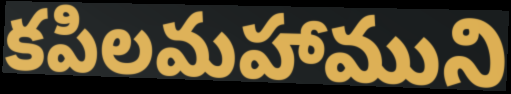
కపిలమహాముని